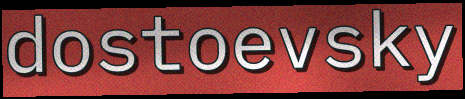
dostoevsky